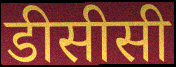
डीसीसी